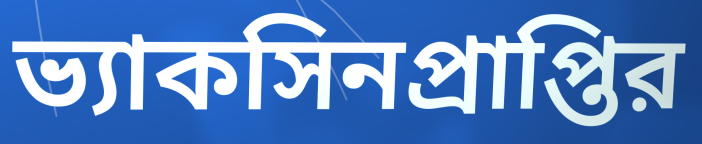
ভ্যাকসিনপ্রাপ্তির